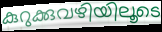
കുറുക്കുവഴിയിലൂടെ